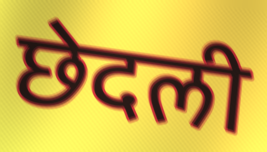
छेदली